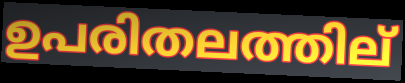
ഉപരിതലത്തില്